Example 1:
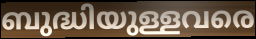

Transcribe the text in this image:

ബുദ്ധിയുള്ളവരെ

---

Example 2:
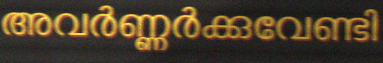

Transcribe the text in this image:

അവർണ്ണർക്കുവേണ്ടി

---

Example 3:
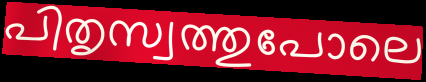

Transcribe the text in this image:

പിതൃസ്വത്തുപോലെ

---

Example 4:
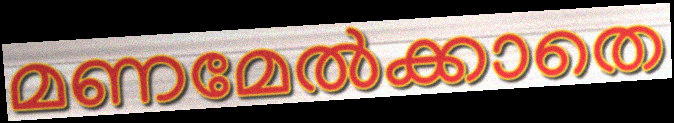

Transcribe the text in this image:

മണമേൽക്കാതെ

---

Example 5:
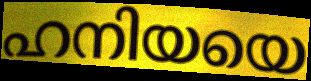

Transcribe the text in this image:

ഹനിയയെ